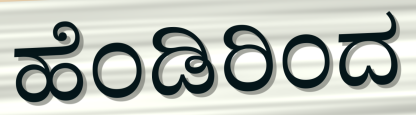
ಹೆಂಡಿರಿಂದ